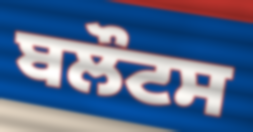
ਬਲੌਟਸ